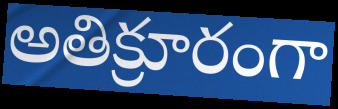
అతిక్రూరంగా